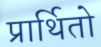
प्रार्थितो